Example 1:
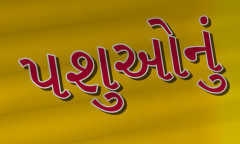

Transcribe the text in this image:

પશુઓનું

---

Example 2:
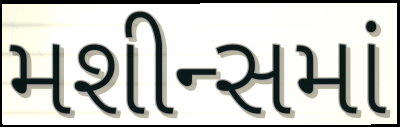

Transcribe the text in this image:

મશીન્સમાં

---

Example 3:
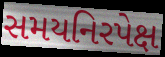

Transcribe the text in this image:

સમયનિરપેક્ષ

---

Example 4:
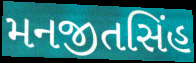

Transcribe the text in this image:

મનજીતસિંહ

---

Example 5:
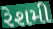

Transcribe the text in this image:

રેશમી